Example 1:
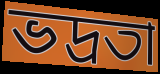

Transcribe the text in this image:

ভদ্ৰতা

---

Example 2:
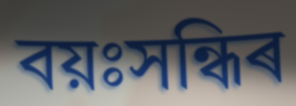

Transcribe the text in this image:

বয়ঃসন্ধিৰ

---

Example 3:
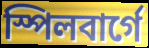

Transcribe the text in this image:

স্পিলবাৰ্গে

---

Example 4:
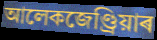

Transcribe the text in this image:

আলেকজেণ্ড্ৰিয়াৰ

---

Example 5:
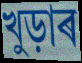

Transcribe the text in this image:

খুড়াৰ